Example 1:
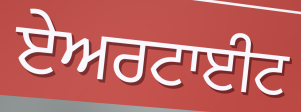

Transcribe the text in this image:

ਏਅਰਟਾਈਟ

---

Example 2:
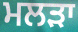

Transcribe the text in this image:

ਮਲੜਾ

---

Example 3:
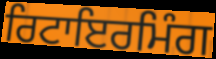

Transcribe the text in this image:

ਰਿਟਾਇਰਮਿੰਗ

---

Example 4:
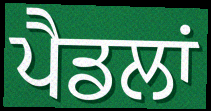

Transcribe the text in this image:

ਪੈਡਲਾਂ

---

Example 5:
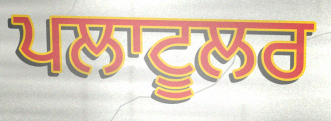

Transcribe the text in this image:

ਪਲਾਟੂਲਰ